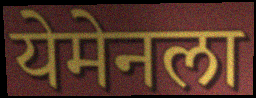
येमेनला